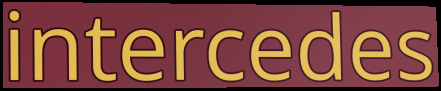
intercedes